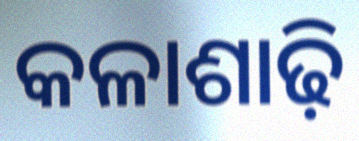
କଳାଶାଢ଼ି